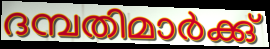
ദമ്പതിമാർക്കു്